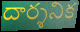
దార్శనిక